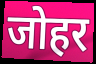
जोहर